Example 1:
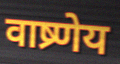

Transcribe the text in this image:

वाष्र्णेय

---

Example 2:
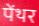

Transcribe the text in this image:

पेंथर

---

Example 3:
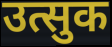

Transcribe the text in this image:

उत्सुक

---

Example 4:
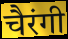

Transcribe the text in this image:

चैरंगी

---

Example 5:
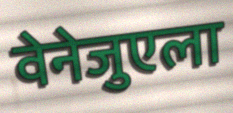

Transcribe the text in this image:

वेनेजुएला